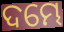
ଦମ୍ଭେ